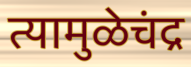
त्यामुळेचंद्र